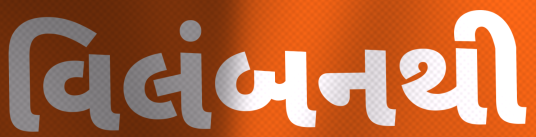
વિલંબનથી